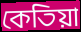
কেতিয়া